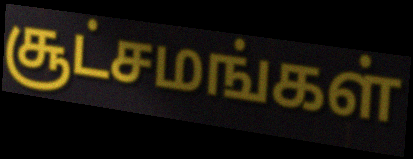
சூட்சமங்கள்